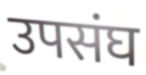
उपसंघ